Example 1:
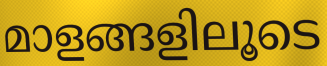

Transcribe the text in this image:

മാളങ്ങളിലൂടെ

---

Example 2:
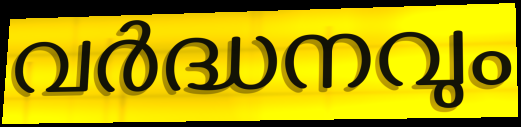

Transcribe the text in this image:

വർദ്ധനവും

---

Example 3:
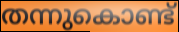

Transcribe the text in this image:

തന്നുകൊണ്ട്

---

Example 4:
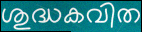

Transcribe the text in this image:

ശുദ്ധകവിത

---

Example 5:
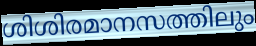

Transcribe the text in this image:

ശിശിരമാനസത്തിലും